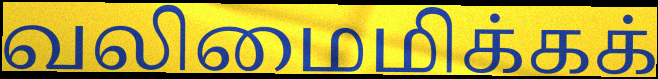
வலிமைமிக்கக்